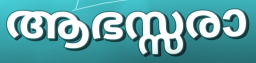
ആഭസ്സരാ